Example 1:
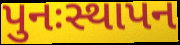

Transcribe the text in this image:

પુનઃસ્થાપન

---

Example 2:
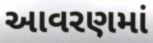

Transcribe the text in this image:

આવરણમાં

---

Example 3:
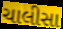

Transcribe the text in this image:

ચાલીસા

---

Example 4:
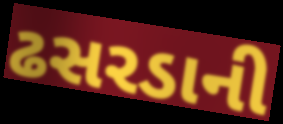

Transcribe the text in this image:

ઢસરડાની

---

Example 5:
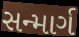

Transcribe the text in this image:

સન્માર્ગ